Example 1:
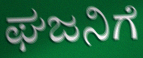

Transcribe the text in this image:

ಘಜನಿಗೆ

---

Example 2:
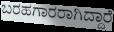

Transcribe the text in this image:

ಬರಹಗಾರರಾಗಿದ್ದಾರೆ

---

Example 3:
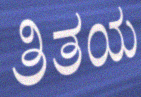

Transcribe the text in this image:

ತಿತಯ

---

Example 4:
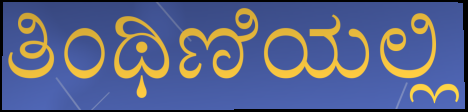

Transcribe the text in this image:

ತಿಂಥಿಣಿಯಲ್ಲಿ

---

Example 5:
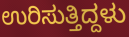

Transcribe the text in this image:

ಉರಿಸುತ್ತಿದ್ದಳು